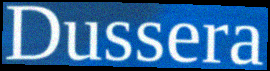
Dussera